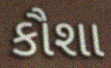
કૌશા